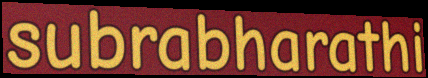
subrabharathi